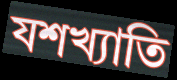
যশখ্যাতি